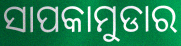
ସାପକାମୁଡାର